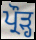
ਪ੍ਰੌੜ੍ਹ